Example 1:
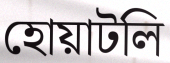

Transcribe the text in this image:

হোয়াটলি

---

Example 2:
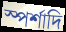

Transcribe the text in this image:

স্পর্শাদি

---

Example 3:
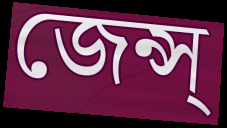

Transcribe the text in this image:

জেন্স্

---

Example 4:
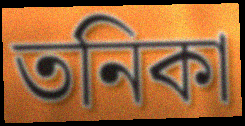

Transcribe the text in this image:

তনিকা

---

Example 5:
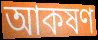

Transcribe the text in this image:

আকষণ